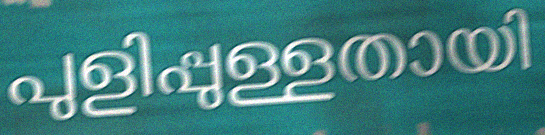
പുളിപ്പുള്ളതായി